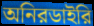
অনিরডাইরি